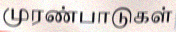
முரண்பாடுகள்